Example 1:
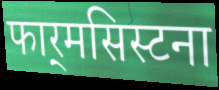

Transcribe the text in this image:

फार्मसिस्टना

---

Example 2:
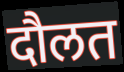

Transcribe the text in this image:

दौलत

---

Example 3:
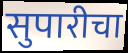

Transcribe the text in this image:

सुपारीचा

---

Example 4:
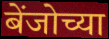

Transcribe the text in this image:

बेंजोच्या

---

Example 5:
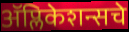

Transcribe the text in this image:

ॲप्लिकेशन्सचे